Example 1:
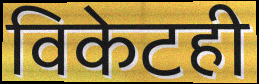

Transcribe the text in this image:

विकेटही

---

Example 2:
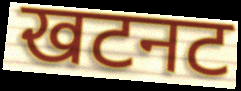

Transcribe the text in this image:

खटनट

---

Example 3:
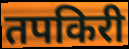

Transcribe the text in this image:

तपकिरी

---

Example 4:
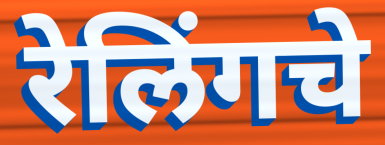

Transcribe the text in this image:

रेलिंगचे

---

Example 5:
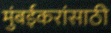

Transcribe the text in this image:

मुंबईकरांसाठी